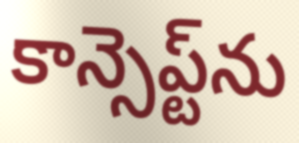
కాన్సెప్ట్‌ను